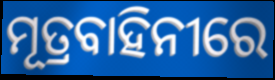
ମୂତ୍ରବାହିନୀରେ